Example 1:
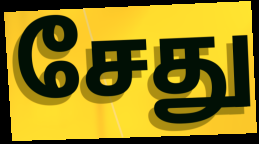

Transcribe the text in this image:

சேது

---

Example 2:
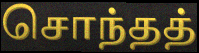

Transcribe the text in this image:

சொந்தத்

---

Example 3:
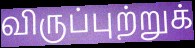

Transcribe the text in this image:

விருப்புற்றுக்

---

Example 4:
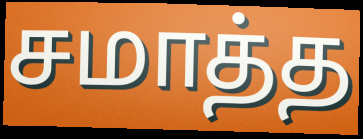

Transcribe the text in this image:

சமாத்த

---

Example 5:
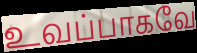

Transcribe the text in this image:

உவப்பாகவே